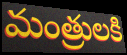
మంత్రులకి